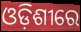
ଓଡ଼ିଶୀରେ